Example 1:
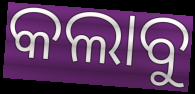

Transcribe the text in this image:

କଲାବୁ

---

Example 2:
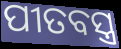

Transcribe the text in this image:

ପୀତବସ୍ତ୍ର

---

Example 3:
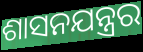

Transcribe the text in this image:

ଶାସନଯନ୍ତ୍ରର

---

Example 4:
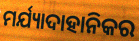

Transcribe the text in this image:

ମର୍ଯ୍ୟାଦାହାନିକର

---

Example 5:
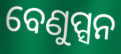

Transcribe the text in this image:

ବେଣୁପ୍ସନ